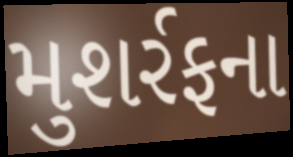
મુશર્રફના